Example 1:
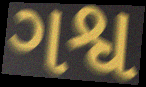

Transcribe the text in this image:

ગશ્વ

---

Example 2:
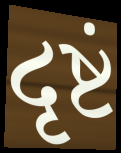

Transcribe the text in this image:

દૃષ્ટં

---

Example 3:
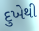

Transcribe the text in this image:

દુખેથી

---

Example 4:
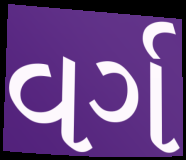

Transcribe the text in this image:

વર્ગ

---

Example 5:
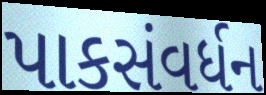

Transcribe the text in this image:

પાકસંવર્ધન